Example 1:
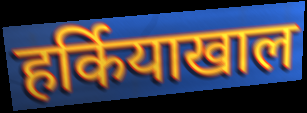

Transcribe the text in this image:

हर्कियाखाल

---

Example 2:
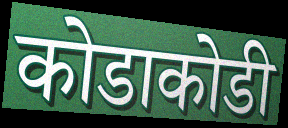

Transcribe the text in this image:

कोडाकोडी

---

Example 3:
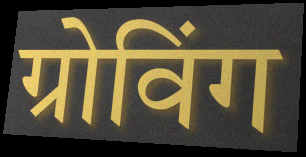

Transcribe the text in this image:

ग्रोविंग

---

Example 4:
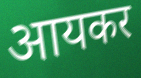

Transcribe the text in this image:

आयकर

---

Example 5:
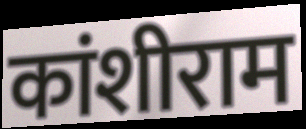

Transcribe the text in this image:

कांशीराम